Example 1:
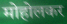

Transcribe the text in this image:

मोहोलकर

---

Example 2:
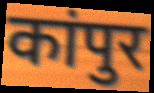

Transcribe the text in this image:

कांपुर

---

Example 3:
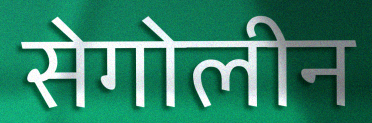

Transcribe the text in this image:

सेगोलीन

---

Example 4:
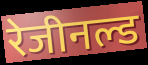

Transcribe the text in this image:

रेजीनल्ड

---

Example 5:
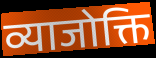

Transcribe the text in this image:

व्याजोक्ति